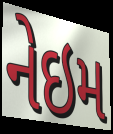
નેઇમ